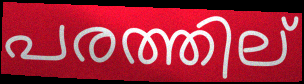
പരത്തില്